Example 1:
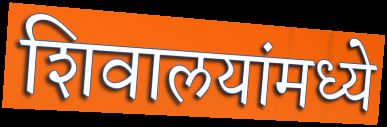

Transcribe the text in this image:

शिवालयांमध्ये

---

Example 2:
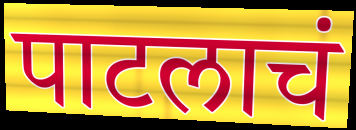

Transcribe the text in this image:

पाटलाचं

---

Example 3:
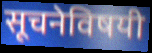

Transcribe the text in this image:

सूचनेविषयी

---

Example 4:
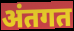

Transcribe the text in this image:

अंतगत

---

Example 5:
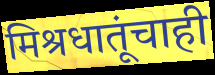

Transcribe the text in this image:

मिश्रधातूंचाही